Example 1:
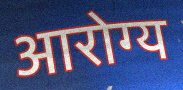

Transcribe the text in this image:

आरोग्य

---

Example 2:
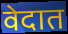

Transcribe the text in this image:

वेदात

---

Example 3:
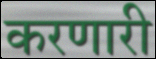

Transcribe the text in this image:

करणारी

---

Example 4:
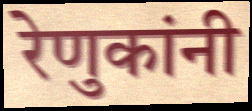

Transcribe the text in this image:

रेणुकांनी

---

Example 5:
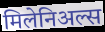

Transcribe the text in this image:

मिलेनिअल्स